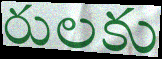
రులకు